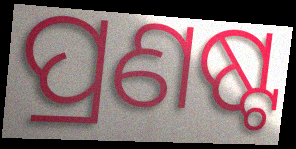
ପ୍ରଣଷ୍ଟ